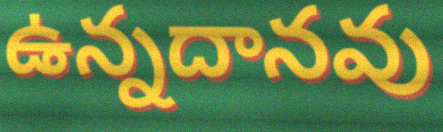
ఉన్నదానవు